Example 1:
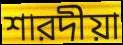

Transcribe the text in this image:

শারদীয়া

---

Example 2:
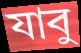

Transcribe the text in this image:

যাবু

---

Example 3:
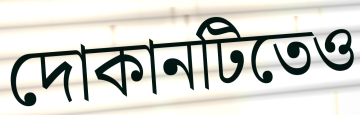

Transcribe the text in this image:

দোকানটিতেও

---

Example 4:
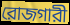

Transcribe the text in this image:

রোজগারী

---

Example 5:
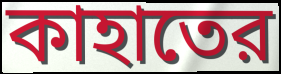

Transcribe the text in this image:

কাহাতের